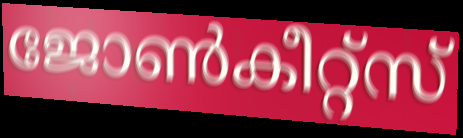
ജോൺകീറ്റ്സ്